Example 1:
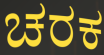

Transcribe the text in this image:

ಚರಕ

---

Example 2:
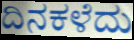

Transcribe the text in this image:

ದಿನಕಳೆದು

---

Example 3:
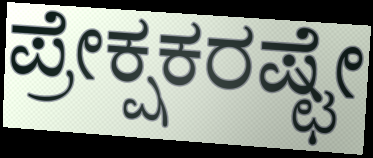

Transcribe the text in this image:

ಪ್ರೇಕ್ಷಕರಷ್ಟೇ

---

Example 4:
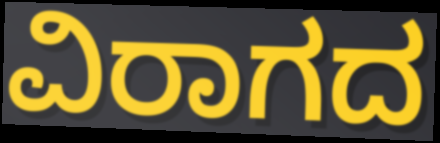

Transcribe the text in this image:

ವಿರಾಗದ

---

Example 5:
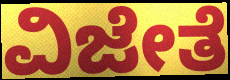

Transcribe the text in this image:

ವಿಜೇತೆ